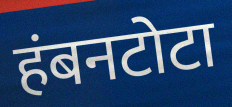
हंबनटोटा